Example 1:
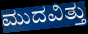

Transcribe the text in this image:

ಮುದವಿತ್ತು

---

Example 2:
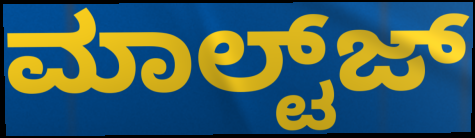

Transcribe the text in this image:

ಮಾಲ್ಟ್‌ಜ್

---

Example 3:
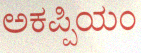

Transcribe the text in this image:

ಅಕಪ್ಪಿಯಂ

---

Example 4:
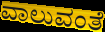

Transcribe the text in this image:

ವಾಲುವಂತೆ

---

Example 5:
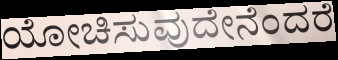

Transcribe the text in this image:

ಯೋಚಿಸುವುದೇನೆಂದರೆ